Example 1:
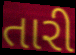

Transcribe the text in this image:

તારી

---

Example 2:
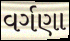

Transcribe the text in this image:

વર્ગણા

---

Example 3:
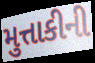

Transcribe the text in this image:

મુત્તાકીની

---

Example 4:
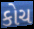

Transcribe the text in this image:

કોચ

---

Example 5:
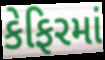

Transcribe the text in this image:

કેફિરમાં